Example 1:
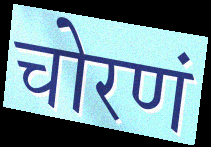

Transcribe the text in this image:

चोरणं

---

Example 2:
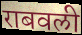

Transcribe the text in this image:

राबवली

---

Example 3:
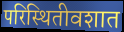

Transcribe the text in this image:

परिस्थितीवशात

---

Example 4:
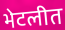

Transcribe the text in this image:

भेटलीत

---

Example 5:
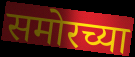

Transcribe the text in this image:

समोरच्या